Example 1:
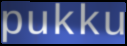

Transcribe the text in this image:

pukku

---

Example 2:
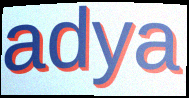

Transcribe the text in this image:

adya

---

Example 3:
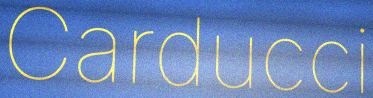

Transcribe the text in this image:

Carducci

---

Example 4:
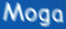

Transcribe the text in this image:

Moga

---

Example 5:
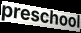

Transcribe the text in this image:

preschool